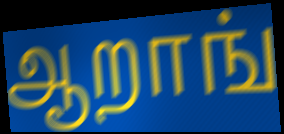
ஆறாங்